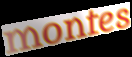
montes